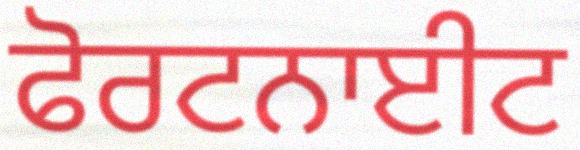
ਫੋਰਟਨਾਈਟ